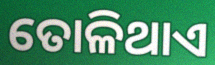
ତୋଳିଥାଏ